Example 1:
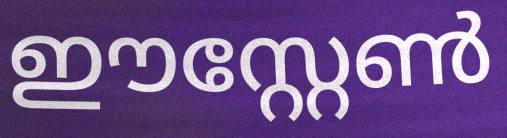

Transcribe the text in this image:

ഈസ്റ്റേൺ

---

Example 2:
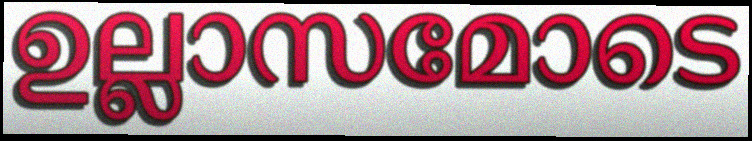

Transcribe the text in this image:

ഉല്ലാസമോടെ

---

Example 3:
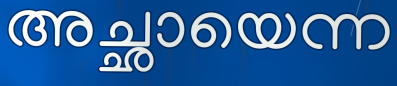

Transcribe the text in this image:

അച്ഛായെന്ന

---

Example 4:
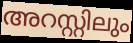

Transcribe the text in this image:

അറസ്റ്റിലും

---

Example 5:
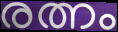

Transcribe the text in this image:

രത്നം